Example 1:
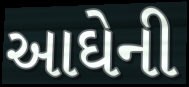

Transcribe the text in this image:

આઘેની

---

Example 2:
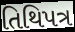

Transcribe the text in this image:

તિથિપત્ર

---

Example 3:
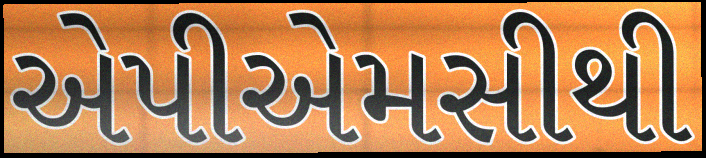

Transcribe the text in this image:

એપીએમસીથી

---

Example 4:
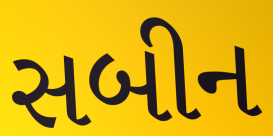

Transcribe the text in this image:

સબીન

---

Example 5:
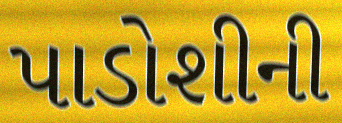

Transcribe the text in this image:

પાડોશીની